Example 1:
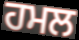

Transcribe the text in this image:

ਹਮਲ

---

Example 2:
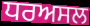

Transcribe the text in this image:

ਧਰਅਸਲ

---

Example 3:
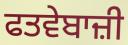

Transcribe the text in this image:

ਫਤਵੇਬਾਜ਼ੀ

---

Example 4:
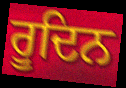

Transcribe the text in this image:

ਰੂਦਿਨ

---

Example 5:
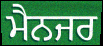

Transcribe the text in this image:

ਮੈਨਜਰ